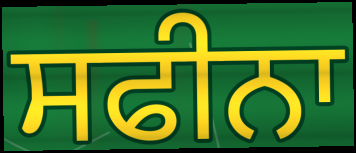
ਸਫੀਨਾ